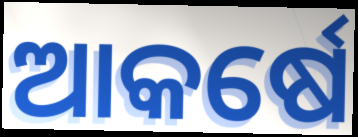
ଆକର୍ଷେ